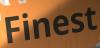
Finest